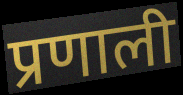
प्रणाली